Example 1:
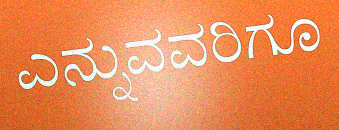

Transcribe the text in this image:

ಎನ್ನುವವರಿಗೂ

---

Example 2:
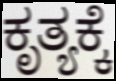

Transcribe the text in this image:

ಕೃತ್ಯಕ್ಕೆ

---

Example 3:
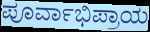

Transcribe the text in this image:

ಪೂರ್ವಾಭಿಪ್ರಾಯ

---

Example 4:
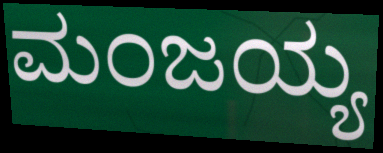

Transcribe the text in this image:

ಮಂಜಯ್ಯ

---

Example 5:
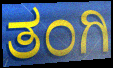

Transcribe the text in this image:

ತಂಗಿ